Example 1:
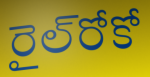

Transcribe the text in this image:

రైల్‌రోకో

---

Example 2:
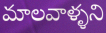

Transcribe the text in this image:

మాలవాళ్ళని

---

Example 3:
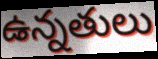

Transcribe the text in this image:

ఉన్నతులు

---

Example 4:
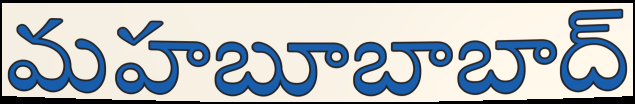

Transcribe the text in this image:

మహబూబాబాద్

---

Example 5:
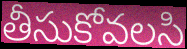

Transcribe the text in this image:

తీసుకోవలసి